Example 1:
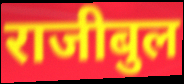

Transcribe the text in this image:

राजीबुल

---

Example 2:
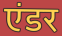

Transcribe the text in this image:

एंडर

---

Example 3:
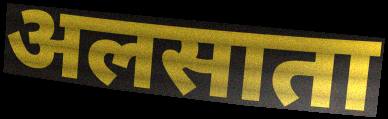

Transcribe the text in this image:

अलसाता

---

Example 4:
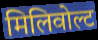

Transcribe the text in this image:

मिलिवोल्ट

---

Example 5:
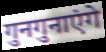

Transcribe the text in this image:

गुनगुनाएंगे